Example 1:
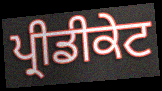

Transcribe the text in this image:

ਪ੍ਰੀਡੀਕੇਟ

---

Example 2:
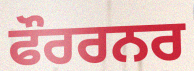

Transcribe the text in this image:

ਫੌਰਰਨਰ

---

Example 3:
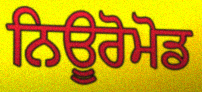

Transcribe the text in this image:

ਨਿਊਰੋਮੋਡ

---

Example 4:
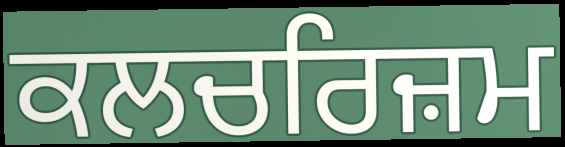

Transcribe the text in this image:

ਕਲਚਰਿਜ਼ਮ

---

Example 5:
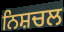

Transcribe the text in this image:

ਨਿਸ਼ਚਲ